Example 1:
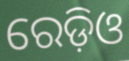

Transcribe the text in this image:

ରେଡ଼ିଓ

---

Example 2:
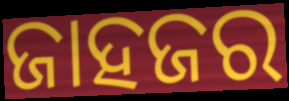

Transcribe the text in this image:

ଜାହଜର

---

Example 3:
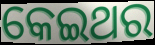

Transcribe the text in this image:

କେଇଥର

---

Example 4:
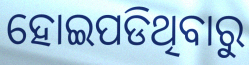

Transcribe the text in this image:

ହୋଇପଡିଥିବାରୁ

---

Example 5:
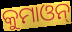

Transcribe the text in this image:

କୁମାଓନ୍